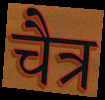
चैत्र